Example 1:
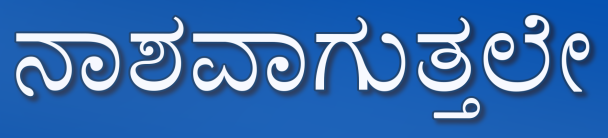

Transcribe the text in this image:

ನಾಶವಾಗುತ್ತಲೇ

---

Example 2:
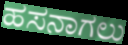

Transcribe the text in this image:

ಹಸನಾಗಲು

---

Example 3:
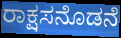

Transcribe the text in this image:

ರಾಕ್ಷಸನೊಡನೆ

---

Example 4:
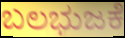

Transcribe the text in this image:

ಬಲಭುಜಕೆ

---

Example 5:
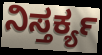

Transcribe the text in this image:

ನಿಸ್ತರ್ಕ್ಯ